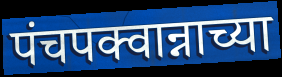
पंचपक्वान्नाच्या